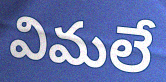
విమలే